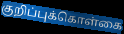
குறிப்புக்கொள்கை